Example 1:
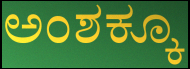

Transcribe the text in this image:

ಅಂಶಕ್ಕೂ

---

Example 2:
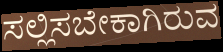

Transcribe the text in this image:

ಸಲ್ಲಿಸಬೇಕಾಗಿರುವ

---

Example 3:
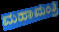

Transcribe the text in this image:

ಮಹಾಮಂತ್ರಿ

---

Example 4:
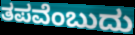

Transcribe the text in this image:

ತಪವೆಂಬುದು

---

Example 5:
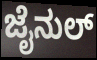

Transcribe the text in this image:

ಜೈನುಲ್